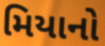
મિયાનો